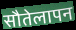
सौतेलापन